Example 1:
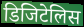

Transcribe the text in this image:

डिजिटेलिस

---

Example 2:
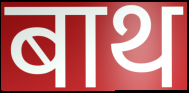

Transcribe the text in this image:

बाथ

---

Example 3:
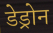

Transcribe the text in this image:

डेड्रोन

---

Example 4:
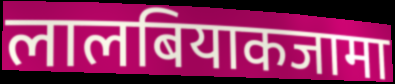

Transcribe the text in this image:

लालबियाकजामा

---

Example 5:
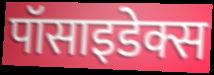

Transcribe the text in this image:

पॉसाइडेक्स